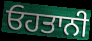
ਓਹਤਾਨੀ